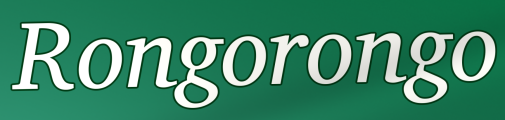
Rongorongo